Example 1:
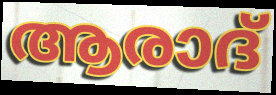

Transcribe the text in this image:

ആരാദ്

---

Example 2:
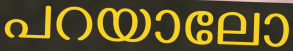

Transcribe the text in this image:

പറയാലോ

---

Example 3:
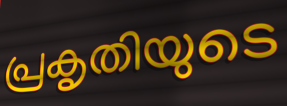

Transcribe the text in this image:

പ്രകൃതിയുടെ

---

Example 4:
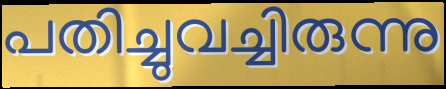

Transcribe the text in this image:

പതിച്ചുവച്ചിരുന്നു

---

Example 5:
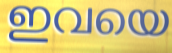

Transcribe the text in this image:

ഇവയെ